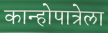
कान्होपात्रेला